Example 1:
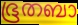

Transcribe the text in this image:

ഭൂതബാ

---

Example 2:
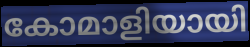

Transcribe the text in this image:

കോമാളിയായി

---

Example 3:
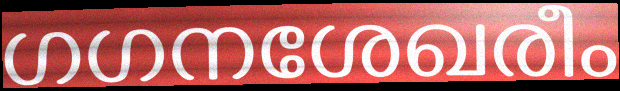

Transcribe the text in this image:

ഗഗനശേഖരീം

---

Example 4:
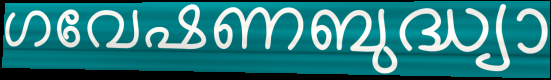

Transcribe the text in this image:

ഗവേഷണബുദ്ധ്യാ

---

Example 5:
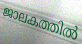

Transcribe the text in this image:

ജാലകത്തിൽ